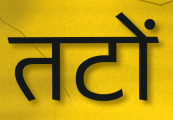
तटों